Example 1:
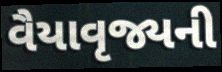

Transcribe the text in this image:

વૈયાવૃજ્યની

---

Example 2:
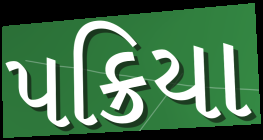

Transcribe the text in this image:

પક્રિયા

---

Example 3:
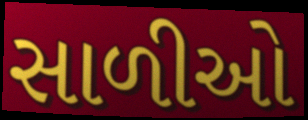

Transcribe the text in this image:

સાળીઓ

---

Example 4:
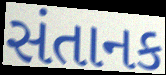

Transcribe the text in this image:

સંતાનક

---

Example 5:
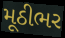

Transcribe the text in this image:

મૂઠીભર